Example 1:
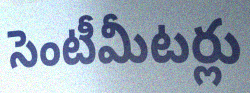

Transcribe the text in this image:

సెంటీమీటర్లు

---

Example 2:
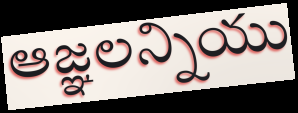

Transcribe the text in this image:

ఆజ్ఞలన్నియు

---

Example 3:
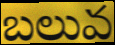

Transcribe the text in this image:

బలువ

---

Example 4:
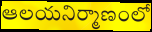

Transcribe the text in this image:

ఆలయనిర్మాణంలో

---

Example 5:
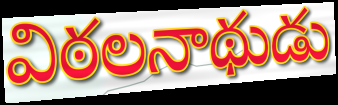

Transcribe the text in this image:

విఠలనాథుడు